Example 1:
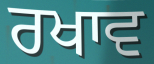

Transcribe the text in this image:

ਰਖਾਵ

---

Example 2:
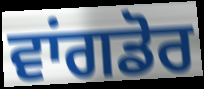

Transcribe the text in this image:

ਵਾਂਗਡੋਰ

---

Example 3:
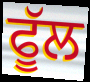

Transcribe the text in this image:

ਫੂੱਲ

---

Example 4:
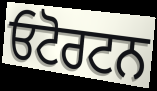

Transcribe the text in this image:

ਓਟੋਰਟਨ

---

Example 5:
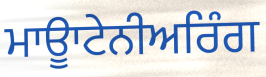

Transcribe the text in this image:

ਮਾਊਾਟੇਨੀਅਰਿੰਗ